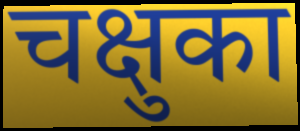
चक्षुका